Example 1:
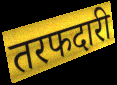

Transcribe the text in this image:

तरफदारी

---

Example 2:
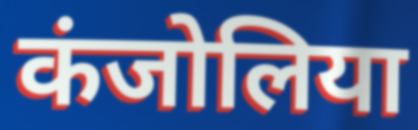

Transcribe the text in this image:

कंजोलिया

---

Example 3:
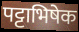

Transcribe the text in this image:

पट्टाभिषेक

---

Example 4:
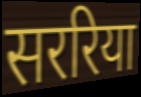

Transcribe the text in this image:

सररिया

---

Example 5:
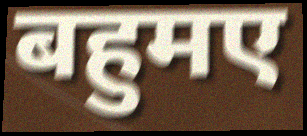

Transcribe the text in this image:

बहुमए